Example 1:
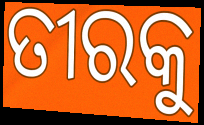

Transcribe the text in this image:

ତୀରକୁ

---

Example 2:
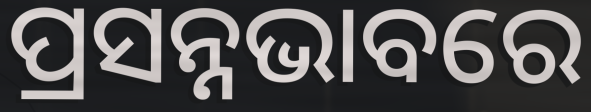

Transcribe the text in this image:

ପ୍ରସନ୍ନଭାବରେ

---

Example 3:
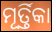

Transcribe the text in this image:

ମୂର୍ତ୍ତିକା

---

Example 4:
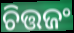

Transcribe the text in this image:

ଚିତ୍ତଜଂ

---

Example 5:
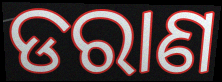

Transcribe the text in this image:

ଡରାଣ